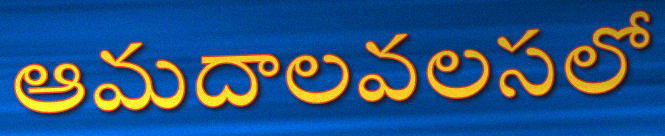
ఆమదాలవలసలో